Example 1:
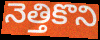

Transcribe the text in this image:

నెత్తికొని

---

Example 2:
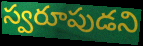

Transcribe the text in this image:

స్వరూపుడని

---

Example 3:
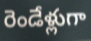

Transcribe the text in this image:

రెండేళ్లుగా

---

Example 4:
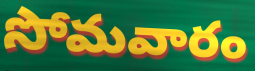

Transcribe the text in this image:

సోమవారం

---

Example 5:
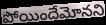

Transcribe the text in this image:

పోయిందేమోనని